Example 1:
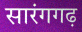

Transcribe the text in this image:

सारंगगढ़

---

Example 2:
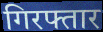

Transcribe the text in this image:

गिरफ्‍तार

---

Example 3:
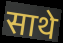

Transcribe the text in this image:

साथे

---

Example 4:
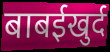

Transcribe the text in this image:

बाबईखुर्द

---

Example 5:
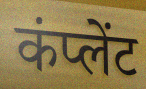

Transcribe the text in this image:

कंप्लेंट